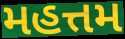
મહત્તમ